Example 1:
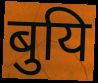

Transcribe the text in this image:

बुयि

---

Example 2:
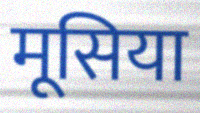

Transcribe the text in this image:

मूसिया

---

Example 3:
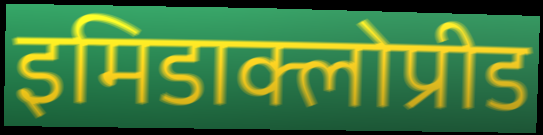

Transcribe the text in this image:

इमिडाक्लोप्रीड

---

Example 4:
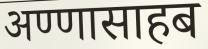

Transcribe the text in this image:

अण्णासाहब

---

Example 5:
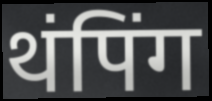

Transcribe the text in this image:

थंपिंग